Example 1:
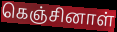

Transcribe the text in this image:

கெஞ்சினாள்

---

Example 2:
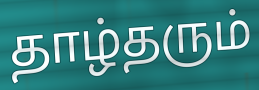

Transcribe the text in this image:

தாழ்தரும்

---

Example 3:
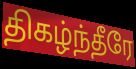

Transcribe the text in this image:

திகழ்ந்தீரே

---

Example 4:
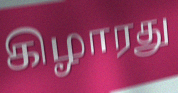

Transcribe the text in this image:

கிழாரது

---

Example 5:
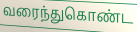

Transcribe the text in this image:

வரைந்துகொண்ட